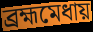
ব্রহ্মমেধায়